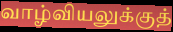
வாழ்வியலுக்குத்